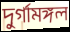
দুর্গামঙ্গল